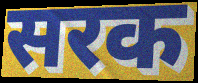
सरक